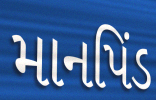
માનપિંડ